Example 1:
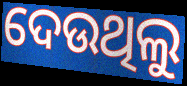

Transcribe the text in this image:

ଦେଉଥିଲୁ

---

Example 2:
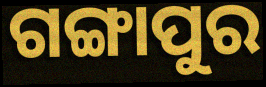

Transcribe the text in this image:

ଗଙ୍ଗାପୁର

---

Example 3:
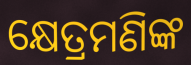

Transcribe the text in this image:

କ୍ଷେତ୍ରମଣିଙ୍କ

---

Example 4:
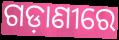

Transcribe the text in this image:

ଗଡ଼ାଣୀରେ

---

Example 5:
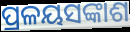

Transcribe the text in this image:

ପ୍ରଳୟସଙ୍କାଶ